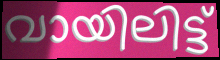
വായിലിട്ട്